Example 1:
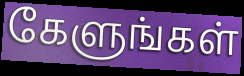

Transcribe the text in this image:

கேளுங்கள்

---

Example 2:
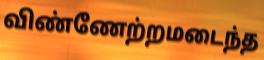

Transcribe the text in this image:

விண்ணேற்றமடைந்த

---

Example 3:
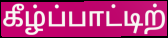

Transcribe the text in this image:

கீழ்ப்பாட்டிற்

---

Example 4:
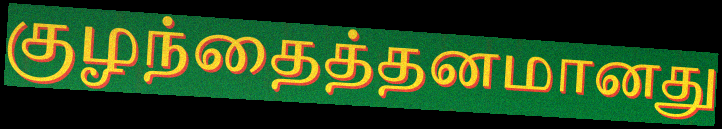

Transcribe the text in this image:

குழந்தைத்தனமானது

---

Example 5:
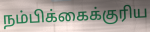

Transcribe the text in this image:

நம்பிக்கைக்குரிய